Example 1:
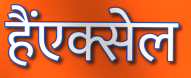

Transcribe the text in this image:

हैंएक्सेल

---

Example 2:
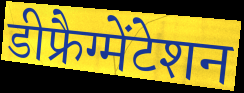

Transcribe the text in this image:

डीफ्रैग्मेंटेशन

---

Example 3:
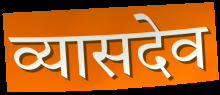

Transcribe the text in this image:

व्यासदेव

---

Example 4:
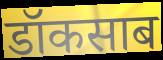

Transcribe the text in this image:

डॉकसाब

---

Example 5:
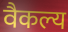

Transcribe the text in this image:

वैकल्य